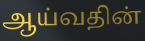
ஆய்வதின்